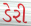
ડેરી